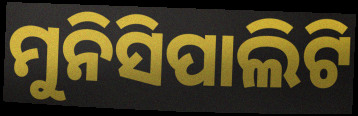
ମୁନିସିପାଲିଟି